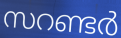
സറണ്ടർ